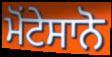
ਮੋਂਟੇਸਾਨੋ